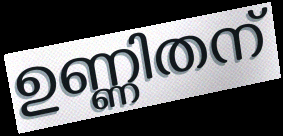
ഉണ്ണിതന്